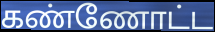
கண்ணோட்ட